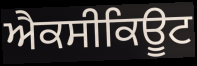
ਐਕਸੀਕਿਊਟ